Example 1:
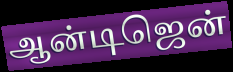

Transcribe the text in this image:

ஆன்டிஜென்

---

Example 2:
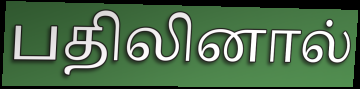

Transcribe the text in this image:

பதிலினால்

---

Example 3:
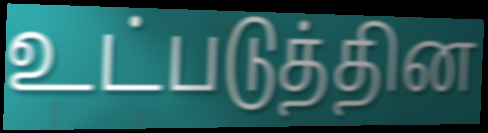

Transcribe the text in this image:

உட்படுத்தின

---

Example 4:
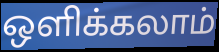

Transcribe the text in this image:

ஒளிக்கலாம்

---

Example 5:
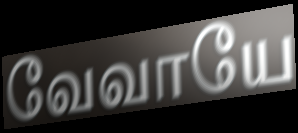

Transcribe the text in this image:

வேவாயே